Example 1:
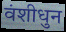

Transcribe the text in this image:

वंशीधुन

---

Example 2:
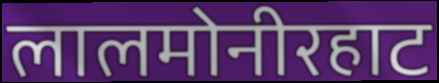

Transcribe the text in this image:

लालमोनीरहाट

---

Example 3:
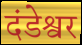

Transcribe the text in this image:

दंडेश्वर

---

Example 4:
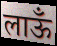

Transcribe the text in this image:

लाऊँ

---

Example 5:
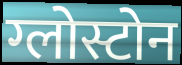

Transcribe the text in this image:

ग्लोस्टोन